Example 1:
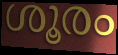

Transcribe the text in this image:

ശൂരം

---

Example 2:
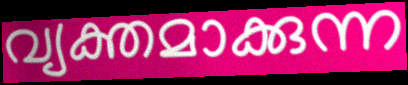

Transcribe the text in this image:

വ്യക്തമാക്കുന്ന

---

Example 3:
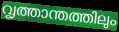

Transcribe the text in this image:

വൃത്താന്തത്തിലും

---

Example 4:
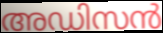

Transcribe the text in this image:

അഡിസൻ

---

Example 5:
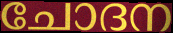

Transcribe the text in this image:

ചോദന